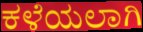
ಕಳೆಯಲಾಗಿ